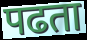
पढता